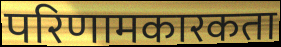
परिणामकारकता